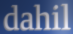
dahil